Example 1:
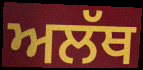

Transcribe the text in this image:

ਅਲੱਥ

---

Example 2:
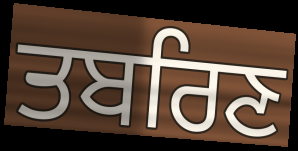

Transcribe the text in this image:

ਤਬਰਿਣ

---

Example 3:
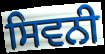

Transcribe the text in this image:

ਸਿਵਨੀ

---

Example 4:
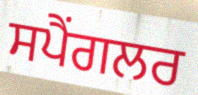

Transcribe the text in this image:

ਸਪੈਂਗਲਰ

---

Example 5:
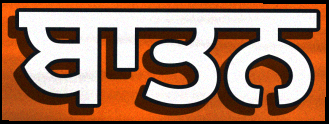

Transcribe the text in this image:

ਬਾਤਨ